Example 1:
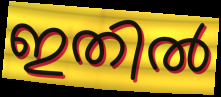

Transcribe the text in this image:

ഇതിൽ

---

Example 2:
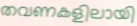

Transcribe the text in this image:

തവണകളിലായി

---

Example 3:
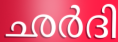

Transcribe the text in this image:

ഛർദി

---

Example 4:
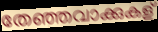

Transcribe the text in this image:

തേഞ്ഞവാക്കുകള്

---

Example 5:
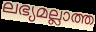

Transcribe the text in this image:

ലഭ്യമല്ലാത്ത